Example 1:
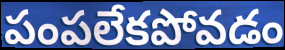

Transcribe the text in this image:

పంపలేకపోవడం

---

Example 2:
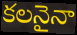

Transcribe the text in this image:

కలనైనా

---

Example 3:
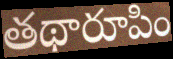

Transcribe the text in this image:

తథారూపిం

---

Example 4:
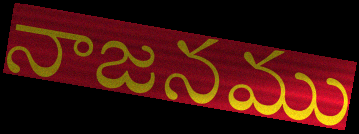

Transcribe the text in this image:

నాజనము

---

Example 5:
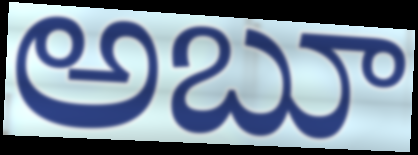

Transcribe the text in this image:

అబూ